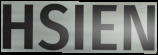
HSIEN